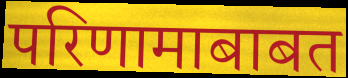
परिणामाबाबत